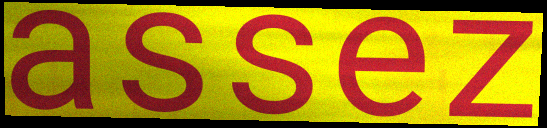
assez